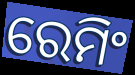
ରେମିଂ